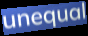
unequal